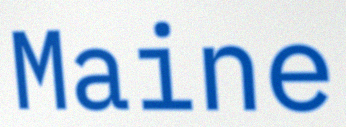
Maine